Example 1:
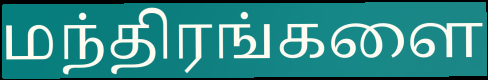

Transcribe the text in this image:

மந்திரங்களை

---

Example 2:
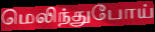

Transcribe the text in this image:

மெலிந்துபோய்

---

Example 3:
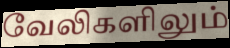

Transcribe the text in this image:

வேலிகளிலும்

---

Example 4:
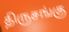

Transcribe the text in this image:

திருசங்கு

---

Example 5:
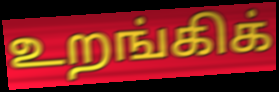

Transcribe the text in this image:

உறங்கிக்